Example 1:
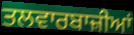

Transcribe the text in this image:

ਤਲਵਾਰਬਾਜ਼ੀਆਂ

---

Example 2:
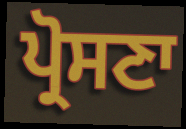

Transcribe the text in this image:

ਪ੍ਰੋਸਣਾ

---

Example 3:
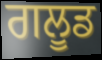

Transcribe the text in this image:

ਗਲੂਡ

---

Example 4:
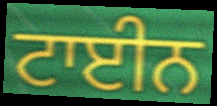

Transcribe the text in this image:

ਟਾਈਨ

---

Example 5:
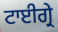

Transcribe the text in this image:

ਟਾਈਗ੍ਰੇ